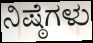
ನಿಷ್ಠೆಗಳು